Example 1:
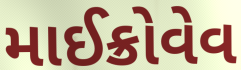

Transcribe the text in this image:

માઈક્રોવેવ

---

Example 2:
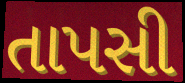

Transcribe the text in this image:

તાપસી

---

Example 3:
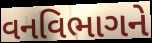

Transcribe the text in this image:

વનવિભાગને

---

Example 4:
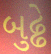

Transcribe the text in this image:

બુઢ્ઢે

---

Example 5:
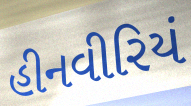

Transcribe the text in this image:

હીનવીરિયં